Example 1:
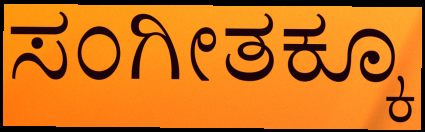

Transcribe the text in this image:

ಸಂಗೀತಕ್ಕೂ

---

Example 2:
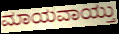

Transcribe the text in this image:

ಮಾಯವಾಯ್ತು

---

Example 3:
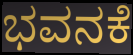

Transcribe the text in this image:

ಭವನಕೆ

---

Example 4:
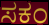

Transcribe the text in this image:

ಸಕಂ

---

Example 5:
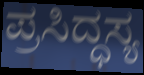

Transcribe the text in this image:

ಪ್ರಸಿದ್ಧಸ್ಯ